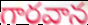
గారవాన